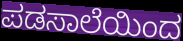
ಪಡಸಾಲೆಯಿಂದ